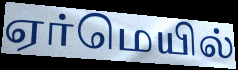
ஏர்மெயில்